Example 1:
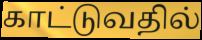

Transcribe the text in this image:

காட்டுவதில்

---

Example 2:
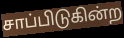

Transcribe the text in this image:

சாப்பிடுகின்ற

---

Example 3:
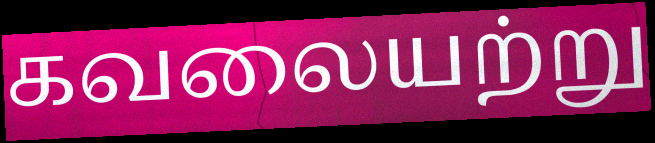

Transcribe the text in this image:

கவலையற்று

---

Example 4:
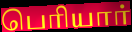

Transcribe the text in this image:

பெரியார்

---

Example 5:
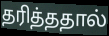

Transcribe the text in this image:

தரித்ததால்